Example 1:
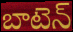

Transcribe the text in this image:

బాటెన్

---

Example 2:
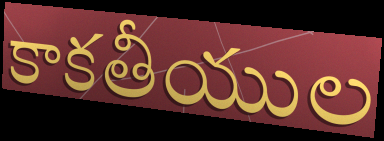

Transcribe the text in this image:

కాకతీయుల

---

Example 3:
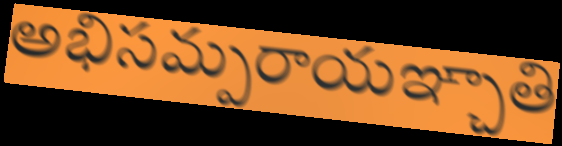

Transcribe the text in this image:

అభిసమ్పరాయఞ్చాతి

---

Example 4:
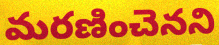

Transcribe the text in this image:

మరణించెనని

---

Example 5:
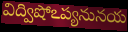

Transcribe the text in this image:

విద్విషోఽప్యనునయ